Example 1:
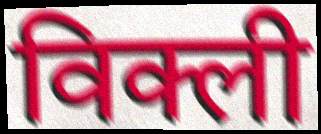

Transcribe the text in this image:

विक्ली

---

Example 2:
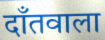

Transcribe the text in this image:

दाँतवाला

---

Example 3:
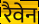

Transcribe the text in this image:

रैवेन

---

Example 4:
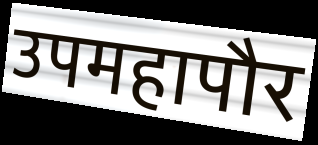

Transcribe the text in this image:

उपमहापौर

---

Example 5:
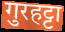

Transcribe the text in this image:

गुरहट्टा